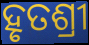
ହୃତଶ୍ରୀ